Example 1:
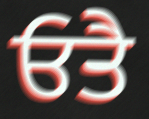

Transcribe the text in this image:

ਓਤੈ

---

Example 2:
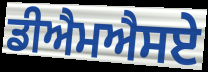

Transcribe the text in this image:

ਡੀਐਮਐਸਏ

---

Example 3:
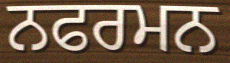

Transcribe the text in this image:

ਨਫਰਮਨ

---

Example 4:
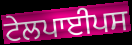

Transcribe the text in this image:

ਟੇਲਪਾਈਪਸ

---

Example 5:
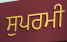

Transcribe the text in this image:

ਸੁਪਰਮੀ